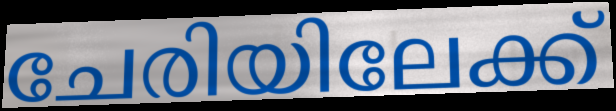
ചേരിയിലേക്ക്